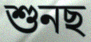
শুনছ